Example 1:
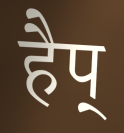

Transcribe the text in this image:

हैप्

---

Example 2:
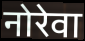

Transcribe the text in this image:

नोरेवा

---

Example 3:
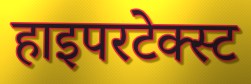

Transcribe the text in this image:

हाइपरटेक्स्ट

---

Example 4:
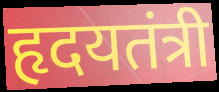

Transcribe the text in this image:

हृदयतंत्री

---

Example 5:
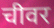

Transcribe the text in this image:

चीवर